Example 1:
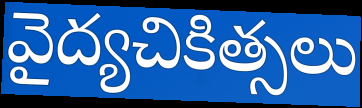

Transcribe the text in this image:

వైద్యచికిత్సలు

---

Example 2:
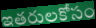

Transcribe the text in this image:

ఇతరులకోసం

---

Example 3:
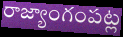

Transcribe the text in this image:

రాజ్యాంగంపట్ల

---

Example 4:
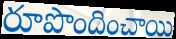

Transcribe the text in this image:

రూపొందించాయి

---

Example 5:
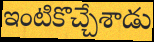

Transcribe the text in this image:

ఇంటికొచ్చేశాడు